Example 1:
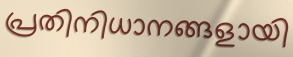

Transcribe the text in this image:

പ്രതിനിധാനങ്ങളായി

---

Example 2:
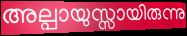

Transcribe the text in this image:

അല്പായുസ്സായിരുന്നു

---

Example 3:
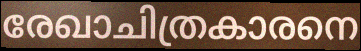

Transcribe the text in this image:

രേഖാചിത്രകാരനെ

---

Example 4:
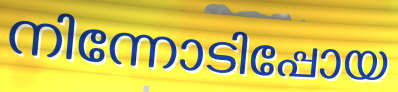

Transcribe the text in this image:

നിന്നോടിപ്പോയ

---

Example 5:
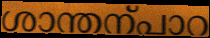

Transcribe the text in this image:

ശാന്തന്പാറ